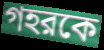
গহরকে